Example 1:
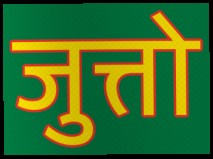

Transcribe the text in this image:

जुत्तो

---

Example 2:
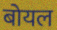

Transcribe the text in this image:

बोयल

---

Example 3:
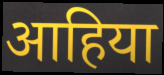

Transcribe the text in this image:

आहिया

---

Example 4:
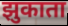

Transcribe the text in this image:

झुकाता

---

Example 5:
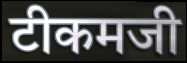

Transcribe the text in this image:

टीकमजी